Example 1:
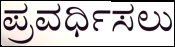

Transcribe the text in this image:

ಪ್ರವರ್ಧಿಸಲು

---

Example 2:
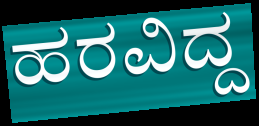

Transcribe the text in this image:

ಹರವಿದ್ದ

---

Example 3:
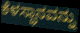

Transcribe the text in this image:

ಕೆಳಸ್ಥಾನವನ್ನು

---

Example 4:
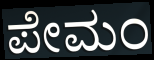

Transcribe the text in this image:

ಪೇಮಂ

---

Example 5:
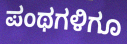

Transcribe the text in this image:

ಪಂಥಗಳಿಗೂ